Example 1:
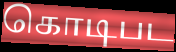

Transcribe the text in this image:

கொடிபட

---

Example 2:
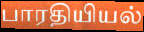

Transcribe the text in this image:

பாரதியியல்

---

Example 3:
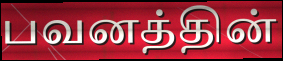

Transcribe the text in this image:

பவனத்தின்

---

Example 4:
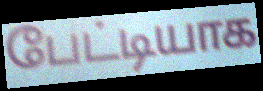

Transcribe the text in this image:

பேட்டியாக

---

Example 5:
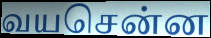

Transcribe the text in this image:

வயசென்ன